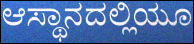
ಆಸ್ಥಾನದಲ್ಲಿಯೂ